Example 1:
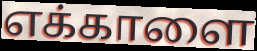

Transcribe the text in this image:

எக்காளை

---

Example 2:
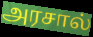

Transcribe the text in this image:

அரசால்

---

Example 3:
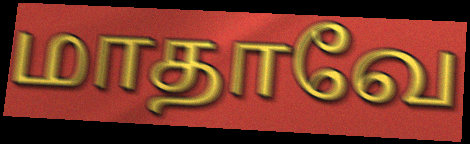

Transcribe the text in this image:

மாதாவே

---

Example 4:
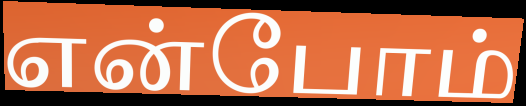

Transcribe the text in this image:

என்போம்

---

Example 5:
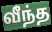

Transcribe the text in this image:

வீந்த